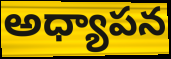
అధ్యాపన